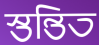
স্তন্তিত